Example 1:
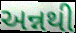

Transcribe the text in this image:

અન્નથી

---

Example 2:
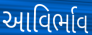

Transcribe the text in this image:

આવિર્ભાવ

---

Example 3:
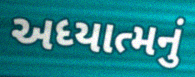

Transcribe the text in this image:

અધ્યાત્મનું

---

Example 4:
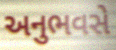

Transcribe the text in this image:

અનુભવસે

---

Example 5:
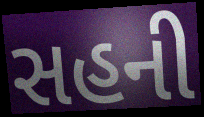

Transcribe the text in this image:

સહની